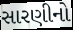
સારણીનો